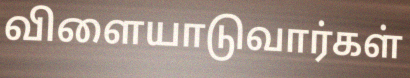
விளையாடுவார்கள்